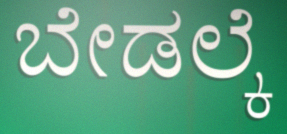
ಬೇಡಲ್ಕೆ